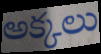
అక్కలు